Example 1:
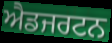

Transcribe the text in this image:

ਐਡਜਰਟਨ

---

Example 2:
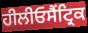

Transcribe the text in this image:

ਹੀਲੀਓਸੈਂਟ੍ਰਿਕ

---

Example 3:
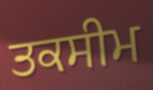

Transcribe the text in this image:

ਤਕਸੀਮ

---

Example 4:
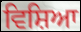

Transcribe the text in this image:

ਵਿਸ਼ਿਆ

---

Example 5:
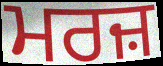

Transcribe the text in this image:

ਮਰਜ਼